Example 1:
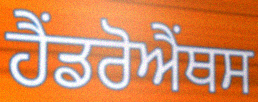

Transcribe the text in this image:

ਹੈਂਡਰੋਐਂਥਸ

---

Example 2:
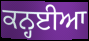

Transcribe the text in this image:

ਕਨ੍ਹਈਆ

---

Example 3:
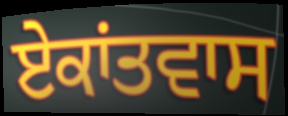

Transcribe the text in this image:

ਏਕਾਂਤਵਾਸ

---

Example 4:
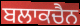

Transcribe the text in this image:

ਬਲਾਕਚੈਨ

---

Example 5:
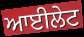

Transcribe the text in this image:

ਆਈਲੇਟ